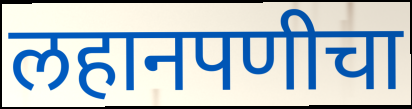
लहानपणीचा